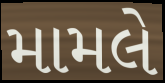
મામલે